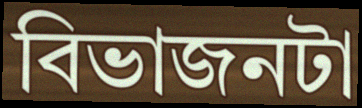
বিভাজনটা